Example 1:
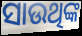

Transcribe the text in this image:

ସାଉଥିଙ୍କ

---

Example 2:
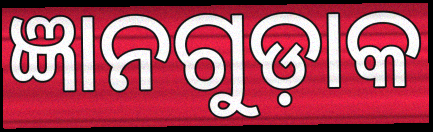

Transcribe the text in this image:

ଜ୍ଞାନଗୁଡ଼ାକ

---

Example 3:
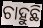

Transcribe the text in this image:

ଚାହୁଛି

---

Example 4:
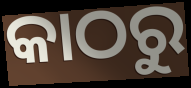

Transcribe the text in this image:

କାଠରୁ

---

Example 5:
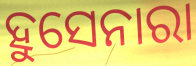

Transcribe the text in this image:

ହୁସେନାରା